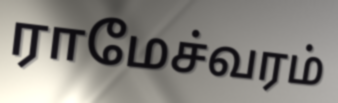
ராமேச்வரம்